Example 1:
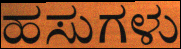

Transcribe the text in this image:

ಹಸುಗಳು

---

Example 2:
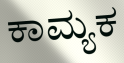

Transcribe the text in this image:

ಕಾಮ್ಯಕ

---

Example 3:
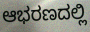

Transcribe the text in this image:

ಆಭರಣದಲ್ಲಿ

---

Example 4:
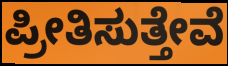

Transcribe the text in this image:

ಪ್ರೀತಿಸುತ್ತೇವೆ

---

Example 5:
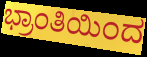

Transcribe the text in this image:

ಭ್ರಾಂತಿಯಿಂದ